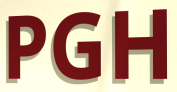
PGH